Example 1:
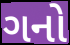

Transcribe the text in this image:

ગનો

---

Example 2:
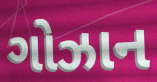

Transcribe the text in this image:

ગોઝાન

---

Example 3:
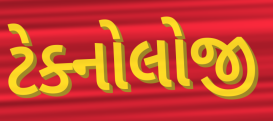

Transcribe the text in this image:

ટેક્નોલોજી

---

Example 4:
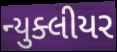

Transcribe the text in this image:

ન્યુક્લીયર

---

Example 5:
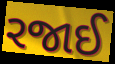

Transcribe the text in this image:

રજાઈ